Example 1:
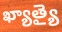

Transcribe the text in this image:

ఖ్యాత్యై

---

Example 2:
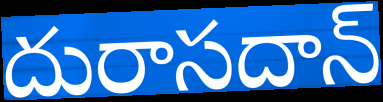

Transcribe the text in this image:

దురాసదాన్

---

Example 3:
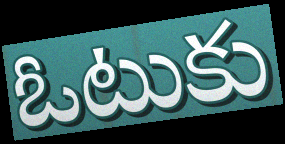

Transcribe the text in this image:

ఓటుకు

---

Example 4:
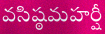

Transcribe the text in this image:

వసిష్ఠమహర్షీ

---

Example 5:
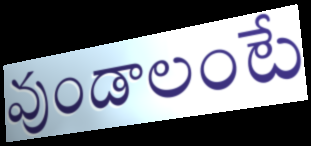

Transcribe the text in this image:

వుండాలంటే